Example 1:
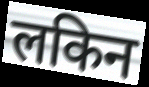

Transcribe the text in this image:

लकिन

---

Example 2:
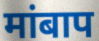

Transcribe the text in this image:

मांबाप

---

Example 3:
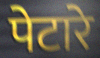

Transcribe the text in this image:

पेटारे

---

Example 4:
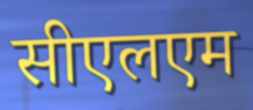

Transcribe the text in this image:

सीएलएम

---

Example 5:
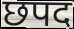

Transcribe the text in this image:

छपद